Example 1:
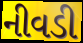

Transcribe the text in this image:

નીવડી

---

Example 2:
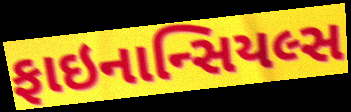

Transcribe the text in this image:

ફાઇનાન્સિયલ્સ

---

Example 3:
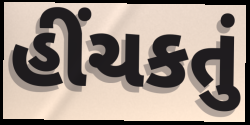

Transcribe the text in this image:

હીંચકતું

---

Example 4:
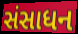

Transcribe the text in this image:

સંસાધન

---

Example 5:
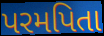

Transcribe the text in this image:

પરમપિતા